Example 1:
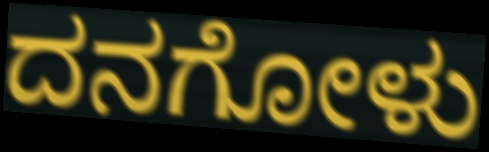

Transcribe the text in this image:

ದನಗೋಳು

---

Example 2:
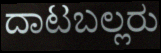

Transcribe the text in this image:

ದಾಟಬಲ್ಲರು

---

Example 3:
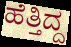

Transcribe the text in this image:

ಹೆತ್ತಿದ್ದ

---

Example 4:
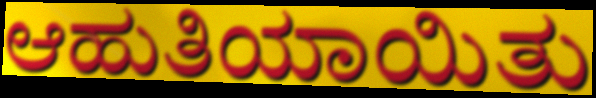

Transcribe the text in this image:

ಆಹುತಿಯಾಯಿತು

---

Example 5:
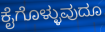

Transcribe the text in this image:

ಕೈಗೊಳ್ಳುವುದೂ